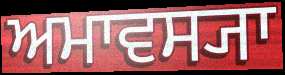
ਅਮਾਵਸ੍ਯਾ